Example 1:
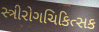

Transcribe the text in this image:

સ્ત્રીરોગચિકિત્સક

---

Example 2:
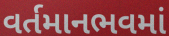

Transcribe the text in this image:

વર્તમાનભવમાં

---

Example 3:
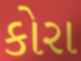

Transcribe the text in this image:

કોરા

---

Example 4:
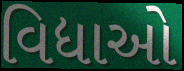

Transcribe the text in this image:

વિદ્યાઓ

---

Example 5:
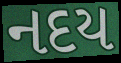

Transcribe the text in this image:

નદય